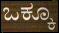
ಒಕ್ಕೂ